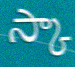
స్కా